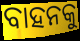
ବାହନକୁ